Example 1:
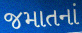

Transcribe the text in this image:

જમાતનાં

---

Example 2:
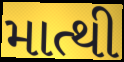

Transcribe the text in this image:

માત્થી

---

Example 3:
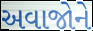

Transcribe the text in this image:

અવાજોને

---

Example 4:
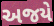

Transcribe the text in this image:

અજયે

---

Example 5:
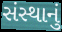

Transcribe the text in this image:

સંસ્થાનું